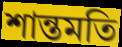
শান্তমতি